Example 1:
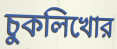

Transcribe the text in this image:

চুকলিখোর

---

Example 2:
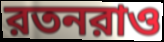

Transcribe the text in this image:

রতনরাও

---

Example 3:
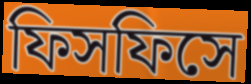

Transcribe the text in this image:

ফিসফিসে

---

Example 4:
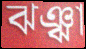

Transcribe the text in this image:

ঝঞ্ঝা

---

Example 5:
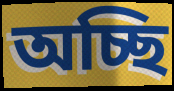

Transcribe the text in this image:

অচ্ছি